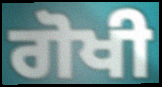
ਗੋਖੀ